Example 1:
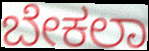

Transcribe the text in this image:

ಬೇಕಲಾ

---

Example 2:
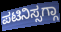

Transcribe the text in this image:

ಪಟಿನಿಸ್ಸಗ್ಗಾ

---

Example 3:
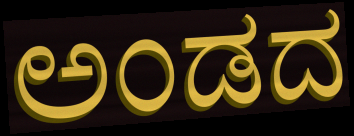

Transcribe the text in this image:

ಅಂಡದ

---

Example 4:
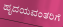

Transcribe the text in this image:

ಹೃದಯವಂತರಿಗೆ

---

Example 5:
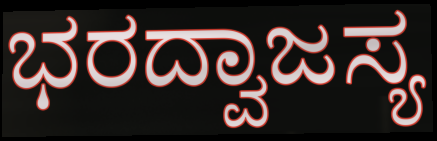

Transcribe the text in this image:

ಭರದ್ವಾಜಸ್ಯ